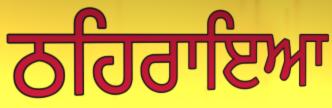
ਠਹਿਰਾਇਆ